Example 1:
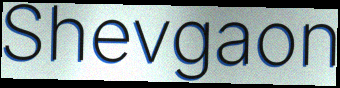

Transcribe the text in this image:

Shevgaon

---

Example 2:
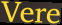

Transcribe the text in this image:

Vere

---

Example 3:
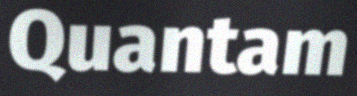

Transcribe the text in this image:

Quantam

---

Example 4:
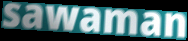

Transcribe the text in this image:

sawaman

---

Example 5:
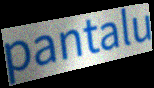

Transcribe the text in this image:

pantalu